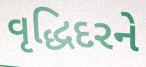
વૃદ્ધિદરને